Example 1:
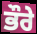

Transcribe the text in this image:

ਭੌਰੇ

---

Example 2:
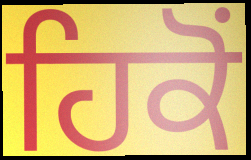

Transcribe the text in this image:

ਹਿਕੋਂ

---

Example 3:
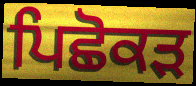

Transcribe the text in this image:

ਪਿਛੋਕੜ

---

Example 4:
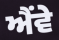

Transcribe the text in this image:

ਐਂਵੇ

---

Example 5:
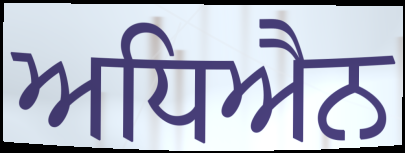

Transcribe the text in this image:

ਅਧਿਐਨ